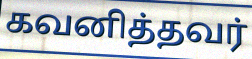
கவனித்தவர்